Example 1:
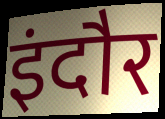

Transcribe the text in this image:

इंदौर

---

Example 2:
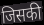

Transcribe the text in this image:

जिसकी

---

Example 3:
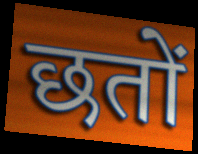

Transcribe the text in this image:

छतों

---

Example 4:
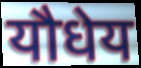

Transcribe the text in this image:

यौधेय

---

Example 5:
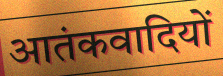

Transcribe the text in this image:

आतंकवादियों